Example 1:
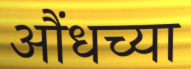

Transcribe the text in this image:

औंधच्या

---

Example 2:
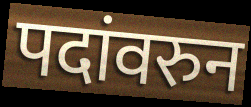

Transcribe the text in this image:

पदांवरुन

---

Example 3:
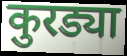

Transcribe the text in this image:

कुरड्या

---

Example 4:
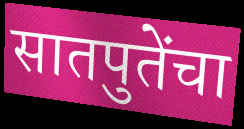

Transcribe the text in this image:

सातपुतेंचा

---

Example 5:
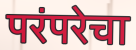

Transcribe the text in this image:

परंपरेचा